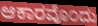
ಆಕಾರವೊಂದು